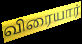
விரையார்